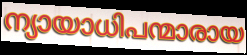
ന്യായാധിപന്മാരായ